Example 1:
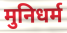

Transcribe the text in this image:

मुनिधर्म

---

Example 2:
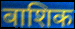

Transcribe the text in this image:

बाशिक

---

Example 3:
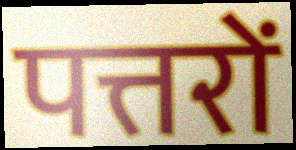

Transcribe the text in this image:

पत्तरों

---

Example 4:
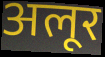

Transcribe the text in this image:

अलूर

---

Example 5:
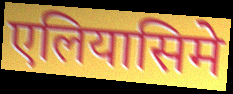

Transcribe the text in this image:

एलियासिमे